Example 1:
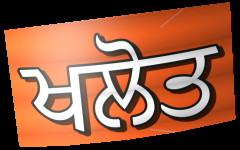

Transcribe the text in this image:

ਖਲੋਤ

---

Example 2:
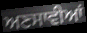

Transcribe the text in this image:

ਅਣਸਾਵੀਆਂ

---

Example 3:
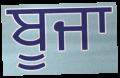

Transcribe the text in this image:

ਬੂਜਾ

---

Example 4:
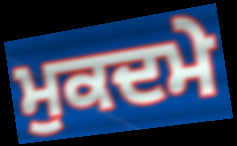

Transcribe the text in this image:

ਮੁਕਦਮੇ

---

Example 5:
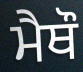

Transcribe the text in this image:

ਮੈਥੌ